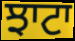
ਝਾਟਾ